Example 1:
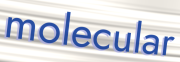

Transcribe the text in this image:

molecular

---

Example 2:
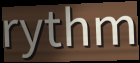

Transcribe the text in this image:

rythm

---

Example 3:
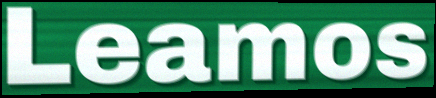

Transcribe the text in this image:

Leamos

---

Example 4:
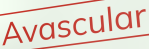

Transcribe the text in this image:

Avascular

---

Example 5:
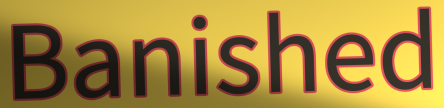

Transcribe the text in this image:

Banished